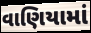
વાણિયામાં